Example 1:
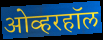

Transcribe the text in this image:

ओव्हरहॉल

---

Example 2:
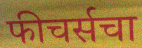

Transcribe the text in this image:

फीचर्सचा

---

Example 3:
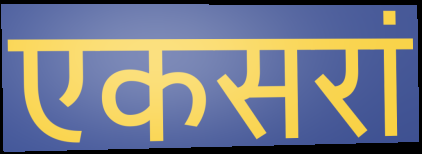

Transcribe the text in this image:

एकसरां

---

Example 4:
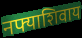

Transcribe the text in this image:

नफ्याशिवाय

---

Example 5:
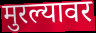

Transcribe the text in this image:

मुरल्यावर